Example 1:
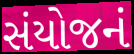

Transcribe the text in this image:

સંયોજનં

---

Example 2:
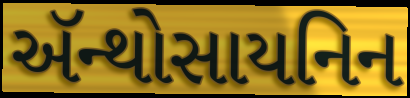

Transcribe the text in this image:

ઍન્થોસાયનિન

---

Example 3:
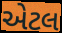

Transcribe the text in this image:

એટલ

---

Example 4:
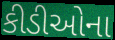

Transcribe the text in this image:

કીડીઓના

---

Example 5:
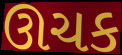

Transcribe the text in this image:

ઊચક